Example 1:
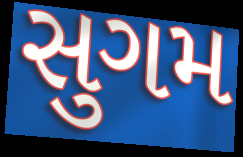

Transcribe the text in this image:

સુગમ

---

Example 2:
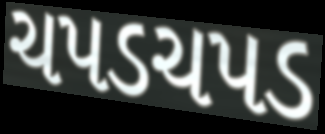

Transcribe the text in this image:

ચપડચપડ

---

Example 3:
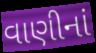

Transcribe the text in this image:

વાણીનાં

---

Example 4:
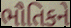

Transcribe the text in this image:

ભૌતિકને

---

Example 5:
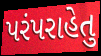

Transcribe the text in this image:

પરંપરાહેતુ